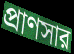
প্রাণসার